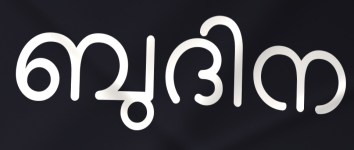
ബുദിന